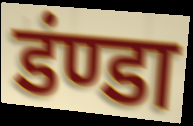
डंण्डा